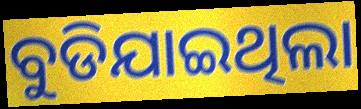
ବୁଡିଯାଇଥିଲା